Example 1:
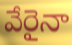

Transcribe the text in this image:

వేరైనా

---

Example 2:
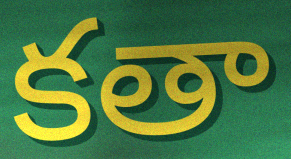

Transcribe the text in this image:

కతా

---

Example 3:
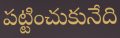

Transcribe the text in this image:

పట్టించుకునేది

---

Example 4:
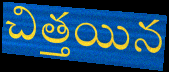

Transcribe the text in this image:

చిత్తయిన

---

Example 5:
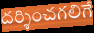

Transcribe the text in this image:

దర్శించగలిగే